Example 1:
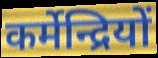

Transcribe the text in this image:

कर्मेन्द्रियों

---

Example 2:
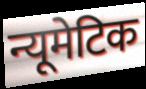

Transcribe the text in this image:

न्यूमेटिक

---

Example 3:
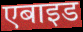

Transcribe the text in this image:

एबाइड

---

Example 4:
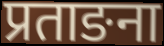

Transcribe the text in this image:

प्रताङना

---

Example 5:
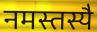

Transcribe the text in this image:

नमस्तस्यै